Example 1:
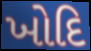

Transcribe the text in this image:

ખોદિ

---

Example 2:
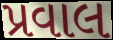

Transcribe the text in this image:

પ્રવાલ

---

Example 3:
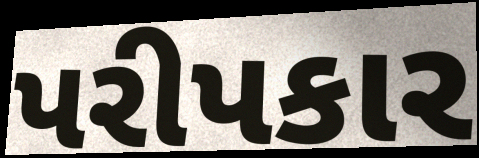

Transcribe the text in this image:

પરીપકાર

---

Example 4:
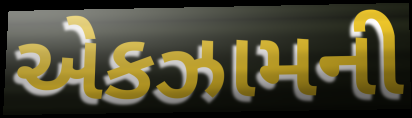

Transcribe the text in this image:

એકઝામની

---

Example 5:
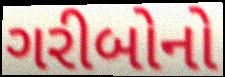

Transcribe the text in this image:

ગરીબોનો